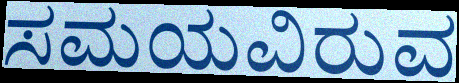
ಸಮಯವಿರುವ